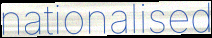
nationalised